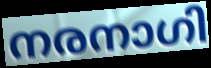
നരനാഗി